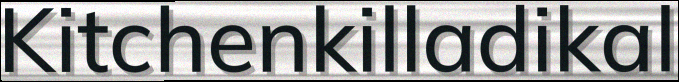
Kitchenkilladikal